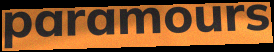
paramours